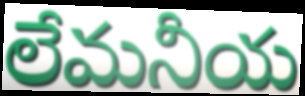
లేమనీయ